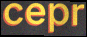
cepr